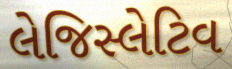
લેજિસ્લેટિવ